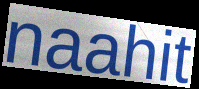
naahit